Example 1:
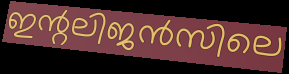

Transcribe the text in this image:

ഇന്റലിജൻസിലെ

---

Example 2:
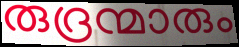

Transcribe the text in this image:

രുദ്രന്മാരും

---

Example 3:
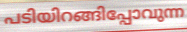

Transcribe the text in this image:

പടിയിറങ്ങിപ്പോവുന്ന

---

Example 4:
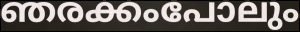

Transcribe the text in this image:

ഞരക്കംപോലും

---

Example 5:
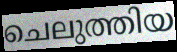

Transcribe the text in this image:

ചെലുത്തിയ